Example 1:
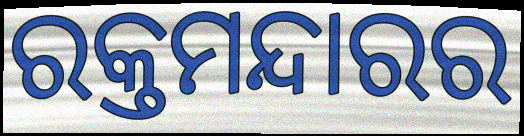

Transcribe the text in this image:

ରକ୍ତମନ୍ଦାରର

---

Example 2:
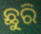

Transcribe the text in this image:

ଛୁରି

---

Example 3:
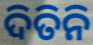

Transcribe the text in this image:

ଦିତିନି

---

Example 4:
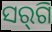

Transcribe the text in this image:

ସର୍‌ଗି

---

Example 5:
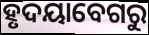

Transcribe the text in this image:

ହୃଦୟାବେଗରୁ